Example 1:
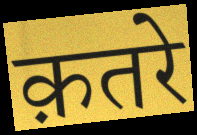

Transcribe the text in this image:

क़तरे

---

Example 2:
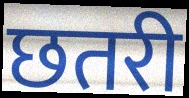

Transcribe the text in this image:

छतरी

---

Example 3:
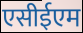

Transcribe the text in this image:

एसीईएम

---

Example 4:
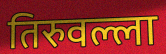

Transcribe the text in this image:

तिरुवल्ला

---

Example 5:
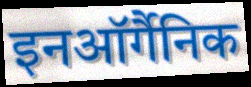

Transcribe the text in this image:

इनऑर्गैनिक